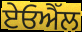
ਏਓਐੱਲ